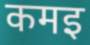
कमइ